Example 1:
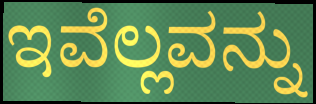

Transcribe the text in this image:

ಇವೆಲ್ಲವನ್ನು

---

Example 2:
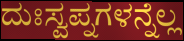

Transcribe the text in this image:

ದುಃಸ್ವಪ್ನಗಳನ್ನೆಲ್ಲ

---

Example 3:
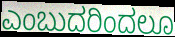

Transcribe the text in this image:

ಎಂಬುದರಿಂದಲೂ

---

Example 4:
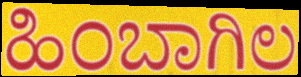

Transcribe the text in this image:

ಹಿಂಬಾಗಿಲ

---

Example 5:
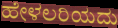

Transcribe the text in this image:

ಹೇಳಲರಿಯದು